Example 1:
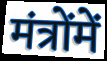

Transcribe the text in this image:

मंत्रोंमें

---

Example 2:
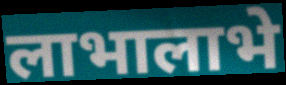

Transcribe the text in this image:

लाभालाभे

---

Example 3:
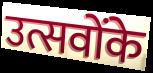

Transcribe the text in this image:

उत्सवोंके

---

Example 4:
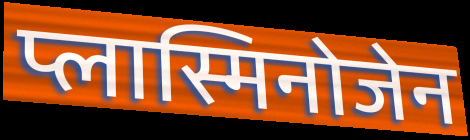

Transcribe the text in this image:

प्लास्मिनोजेन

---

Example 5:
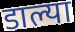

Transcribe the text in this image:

डाल्या